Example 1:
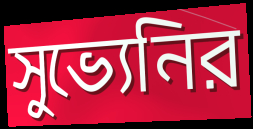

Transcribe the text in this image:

সুভ্যেনির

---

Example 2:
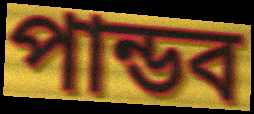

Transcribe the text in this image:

পান্ডব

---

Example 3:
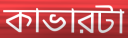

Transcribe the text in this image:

কাভারটা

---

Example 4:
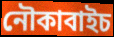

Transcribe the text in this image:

নৌকাবাইচ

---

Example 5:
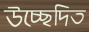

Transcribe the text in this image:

উচ্ছেদিত